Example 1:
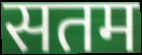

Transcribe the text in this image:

सतम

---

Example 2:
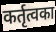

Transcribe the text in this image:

कर्तृत्वका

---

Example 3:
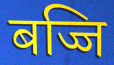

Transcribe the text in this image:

बज्जि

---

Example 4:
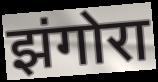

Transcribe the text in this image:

झंगोरा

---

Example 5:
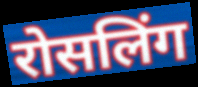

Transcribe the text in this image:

रोसलिंग